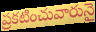
ప్రకటించువారునై